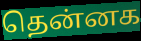
தென்னக